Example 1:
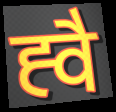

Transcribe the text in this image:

ह्वै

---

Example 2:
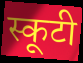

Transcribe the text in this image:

स्कूटी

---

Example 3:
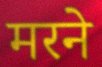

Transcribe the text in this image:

मरने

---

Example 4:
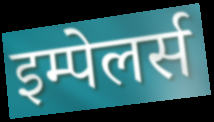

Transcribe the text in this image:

इम्पेलर्स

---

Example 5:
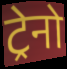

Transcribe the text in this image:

ट्रेनो